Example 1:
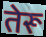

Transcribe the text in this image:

तेरू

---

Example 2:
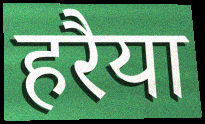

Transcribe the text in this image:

हरैया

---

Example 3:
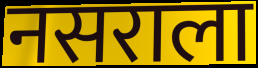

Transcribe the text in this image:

नसराला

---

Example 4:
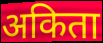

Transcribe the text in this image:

अकिता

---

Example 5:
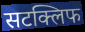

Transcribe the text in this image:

सटक्लिफ